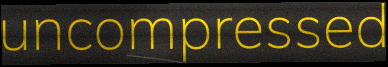
uncompressed